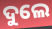
ଦୁଲେ